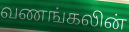
வணங்கலின்